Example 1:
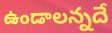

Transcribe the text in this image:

ఉండాలన్నదే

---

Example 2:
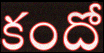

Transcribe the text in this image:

కందో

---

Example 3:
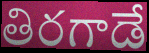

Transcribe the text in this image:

తిరగాడే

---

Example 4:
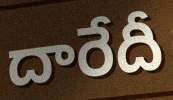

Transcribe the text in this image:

దారేదీ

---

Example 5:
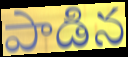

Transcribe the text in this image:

పాడిన